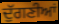
ਦੁੱਗਣੀਆਂ